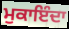
ਮੁਕਾਇੰਦਾ